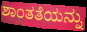
ಶಾಂತತೆಯನ್ನು